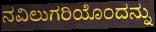
ನವಿಲುಗರಿಯೊಂದನ್ನು